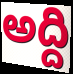
అద్ది